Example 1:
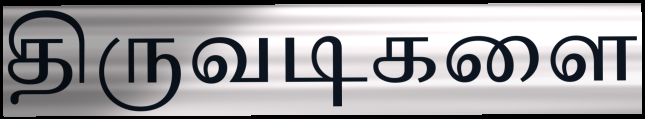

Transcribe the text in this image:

திருவடிகளை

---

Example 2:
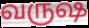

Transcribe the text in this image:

வருஷ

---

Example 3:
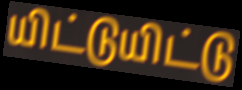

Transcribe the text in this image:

யிட்டுயிட்டு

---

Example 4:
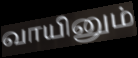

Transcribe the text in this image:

வாயினும்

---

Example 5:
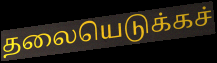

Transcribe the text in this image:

தலையெடுக்கச்